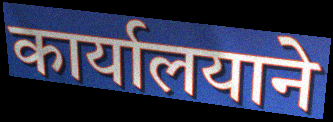
कार्यालयाने